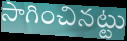
సాగించినట్టు